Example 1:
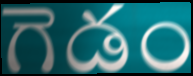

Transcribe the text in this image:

గెడం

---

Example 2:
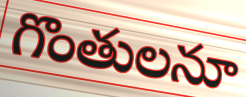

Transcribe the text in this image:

గొంతులనూ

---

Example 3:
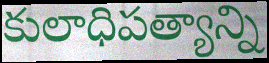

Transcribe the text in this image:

కులాధిపత్యాన్ని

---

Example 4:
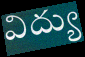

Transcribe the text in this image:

విద్యు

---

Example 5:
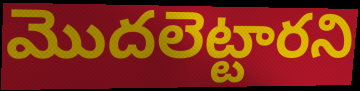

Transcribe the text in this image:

మొదలెట్టారని